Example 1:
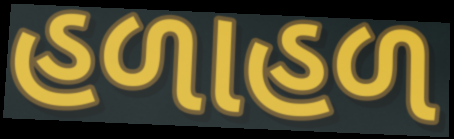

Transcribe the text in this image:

હળાહળ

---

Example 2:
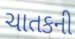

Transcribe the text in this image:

ચાતકની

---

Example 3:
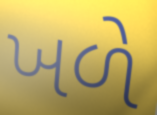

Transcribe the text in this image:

ખળે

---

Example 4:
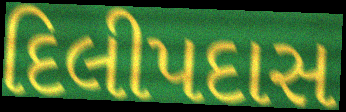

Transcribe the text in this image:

દિલીપદાસ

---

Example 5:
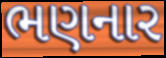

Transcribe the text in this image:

ભણનાર